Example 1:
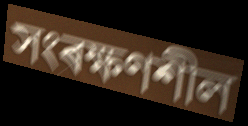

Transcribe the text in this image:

সংৰক্ষণশীল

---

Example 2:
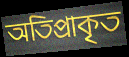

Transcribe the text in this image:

অতিপ্ৰাকৃত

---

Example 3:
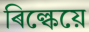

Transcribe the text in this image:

ৰিল্কেয়ে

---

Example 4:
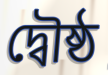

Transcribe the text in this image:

দ্বৌষ্ঠ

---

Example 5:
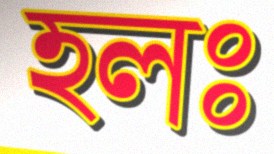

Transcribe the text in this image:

হলঃ